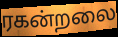
ரகன்றலை